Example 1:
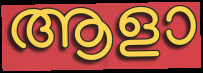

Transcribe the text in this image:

ആളാ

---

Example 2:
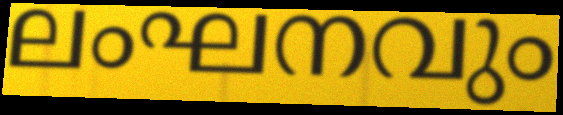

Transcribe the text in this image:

ലംഘനവും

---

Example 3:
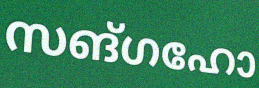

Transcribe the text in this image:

സങ്ഗഹോ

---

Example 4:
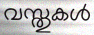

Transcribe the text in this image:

വസ്തുകൾ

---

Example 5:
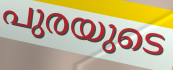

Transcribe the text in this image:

പുരയുടെ